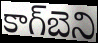
కాగ్‌బెని